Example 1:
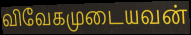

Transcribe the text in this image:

விவேகமுடையவன்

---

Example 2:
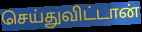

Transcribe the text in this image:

செய்துவிட்டான்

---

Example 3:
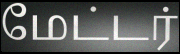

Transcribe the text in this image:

மேட்டர்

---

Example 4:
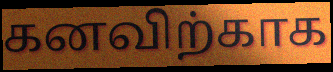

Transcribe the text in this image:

கனவிற்காக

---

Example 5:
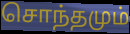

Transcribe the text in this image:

சொந்தமும்